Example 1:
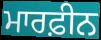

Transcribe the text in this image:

ਮਾਰਫ਼ੀਨ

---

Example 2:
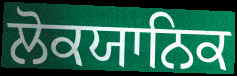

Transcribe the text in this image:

ਲੋਕਯਾਨਿਕ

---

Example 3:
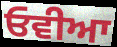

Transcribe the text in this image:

ਓਵੀਆ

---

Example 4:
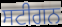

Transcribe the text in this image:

ਸਟੀਗਨ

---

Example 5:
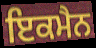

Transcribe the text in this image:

ਇਕਮੈਨ